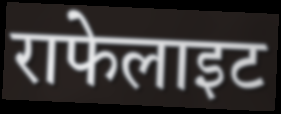
राफेलाइट